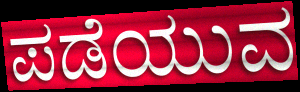
ಪಡೆಯುವ